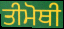
ਤੀਮੋਥੀ